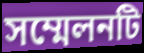
সম্মেলনটি